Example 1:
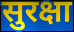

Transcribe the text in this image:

सुरक्षा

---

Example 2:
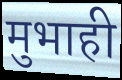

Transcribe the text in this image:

मुभाही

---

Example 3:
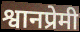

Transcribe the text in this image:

श्वानप्रेमी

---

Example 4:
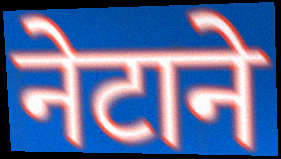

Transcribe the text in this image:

नेटाने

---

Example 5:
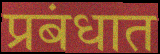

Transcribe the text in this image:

प्रबंधात